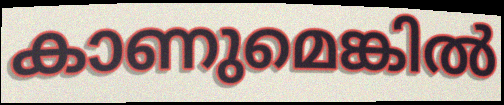
കാണുമെങ്കിൽ